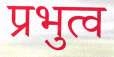
प्रभुत्व